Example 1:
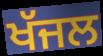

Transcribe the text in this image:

ਖੱਜਲ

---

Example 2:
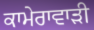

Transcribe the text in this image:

ਕਾਮੇਰਾਵਾੜੀ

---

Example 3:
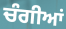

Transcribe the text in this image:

ਚੰਗੀਆਂ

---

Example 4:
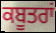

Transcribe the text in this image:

ਕਬੂਤਰਾਂ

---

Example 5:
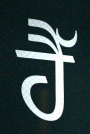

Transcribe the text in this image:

ਹੈੱ